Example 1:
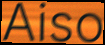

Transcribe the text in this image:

Aiso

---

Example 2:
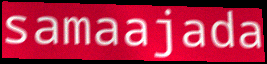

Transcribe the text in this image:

samaajada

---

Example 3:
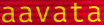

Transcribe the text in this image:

aavata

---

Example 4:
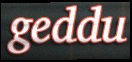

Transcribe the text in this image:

geddu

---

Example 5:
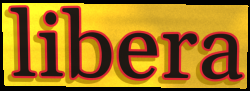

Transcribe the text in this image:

libera